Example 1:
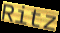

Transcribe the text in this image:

Ritz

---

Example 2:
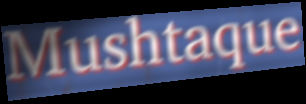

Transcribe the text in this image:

Mushtaque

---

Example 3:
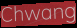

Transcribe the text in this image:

Chwang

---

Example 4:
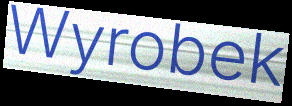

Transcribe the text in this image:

Wyrobek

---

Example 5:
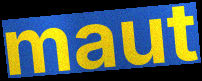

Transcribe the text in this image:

maut